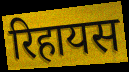
रिहायस